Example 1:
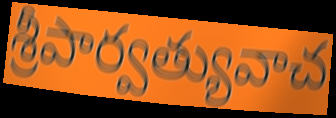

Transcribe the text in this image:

శ్రీపార్వత్యువాచ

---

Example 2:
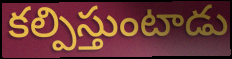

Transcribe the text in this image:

కల్పిస్తుంటాడు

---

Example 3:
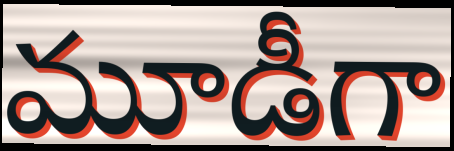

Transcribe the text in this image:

మూడీగా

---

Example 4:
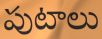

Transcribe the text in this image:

పుటాలు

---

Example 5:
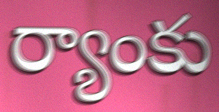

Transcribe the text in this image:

ర్యాంకు